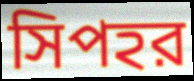
সিপহর